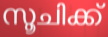
സൂചിക്ക്